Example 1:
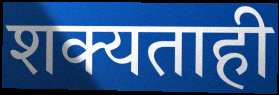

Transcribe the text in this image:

शक्‍यताही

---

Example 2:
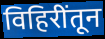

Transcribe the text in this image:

विहिरींतून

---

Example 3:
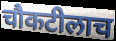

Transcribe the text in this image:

चौकटीलाच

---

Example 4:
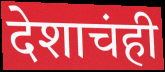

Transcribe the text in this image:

देशाचंही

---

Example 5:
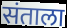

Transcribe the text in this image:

संताला